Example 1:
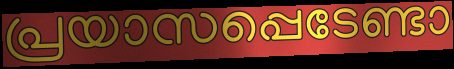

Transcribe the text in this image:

പ്രയാസപ്പെടേണ്ടാ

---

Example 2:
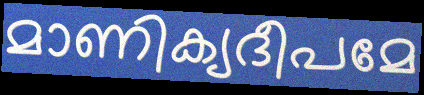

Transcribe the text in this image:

മാണിക്യദീപമേ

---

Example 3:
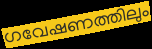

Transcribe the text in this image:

ഗവേഷണത്തിലും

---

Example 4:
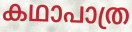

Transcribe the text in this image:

കഥാപാത്ര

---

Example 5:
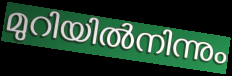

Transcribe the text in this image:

മുറിയിൽനിന്നും